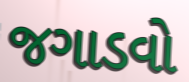
જગાડવો